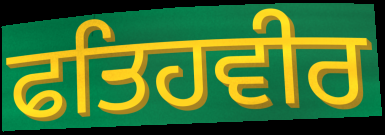
ਫਤਿਹਵੀਰ